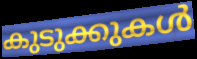
കുടുക്കുകൾ